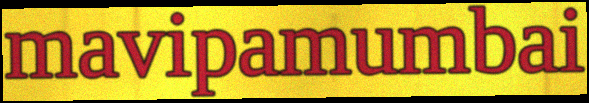
mavipamumbai